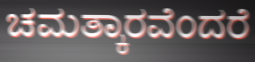
ಚಮತ್ಕಾರವೆಂದರೆ